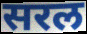
सरल